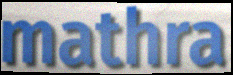
mathra